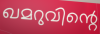
ഖമറുവിന്റെ